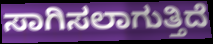
ಸಾಗಿಸಲಾಗುತ್ತಿದೆ